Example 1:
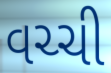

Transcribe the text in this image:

વચ્ચી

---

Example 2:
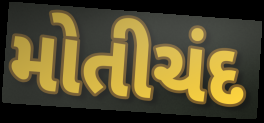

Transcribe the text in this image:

મોતીચંદ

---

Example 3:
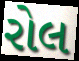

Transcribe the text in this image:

રોલ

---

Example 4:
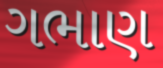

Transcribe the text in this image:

ગભાણ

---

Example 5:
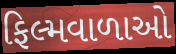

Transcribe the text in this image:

ફિલ્મવાળાઓ